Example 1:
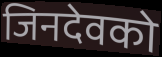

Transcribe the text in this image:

जिनदेवको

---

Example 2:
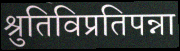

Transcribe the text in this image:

श्रुतिविप्रतिपन्ना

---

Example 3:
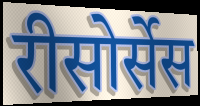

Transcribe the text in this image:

रीसोर्सेस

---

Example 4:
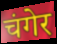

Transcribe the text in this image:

चंगेर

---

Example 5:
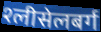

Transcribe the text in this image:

श्लीसेलबर्ग